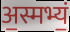
अ॒स्मभ्यं॒